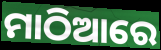
ମାଠିଆରେ